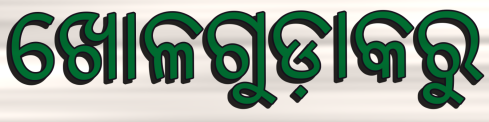
ଖୋଳଗୁଡ଼ାକରୁ